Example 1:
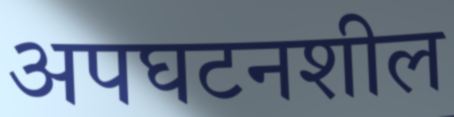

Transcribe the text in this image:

अपघटनशील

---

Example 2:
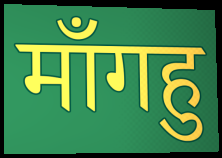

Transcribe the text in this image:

माँगहु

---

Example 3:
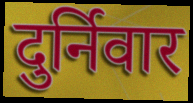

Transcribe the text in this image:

दुर्निवार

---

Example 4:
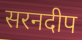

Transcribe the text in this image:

सरनदीप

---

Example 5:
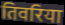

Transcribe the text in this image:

तिवरिया